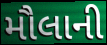
મૌલાની